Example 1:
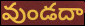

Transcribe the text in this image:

వుండదా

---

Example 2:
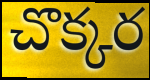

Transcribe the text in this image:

చొక్కర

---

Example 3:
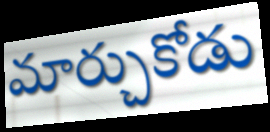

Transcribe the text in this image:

మార్చుకోడు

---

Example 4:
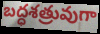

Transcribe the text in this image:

బద్ధశత్రువుగా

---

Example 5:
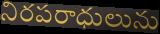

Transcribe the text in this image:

నిరపరాధులును